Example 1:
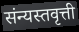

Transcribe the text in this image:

संन्यस्तवृत्ती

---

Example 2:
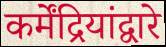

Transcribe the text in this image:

कर्मेंद्रियांद्वारे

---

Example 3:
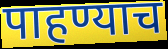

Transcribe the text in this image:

पाहण्याच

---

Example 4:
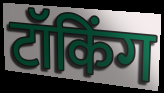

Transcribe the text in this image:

टॉकिंग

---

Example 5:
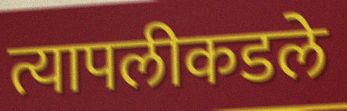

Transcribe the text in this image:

त्यापलीकडले